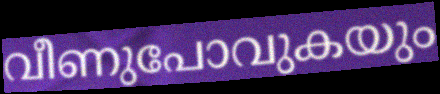
വീണുപോവുകയും